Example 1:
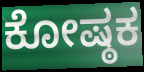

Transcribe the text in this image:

ಕೋಷ್ಠಕ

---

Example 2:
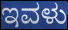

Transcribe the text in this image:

ಇವಳು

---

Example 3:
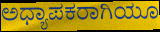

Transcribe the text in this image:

ಅಧ್ಯಾಪಕರಾಗಿಯೂ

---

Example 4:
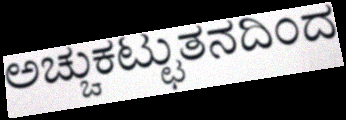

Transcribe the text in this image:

ಅಚ್ಚುಕಟ್ಟುತನದಿಂದ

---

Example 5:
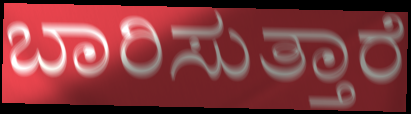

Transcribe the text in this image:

ಬಾರಿಸುತ್ತಾರೆ